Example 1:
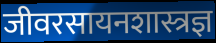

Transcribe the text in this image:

जीवरसायनशास्त्रज्ञ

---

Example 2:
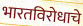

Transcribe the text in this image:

भारतविरोधाचे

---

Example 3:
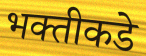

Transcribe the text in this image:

भक्तीकडे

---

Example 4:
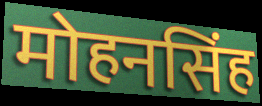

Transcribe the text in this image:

मोहनसिंह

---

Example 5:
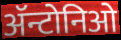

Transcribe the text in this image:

ॲन्टोनिओ